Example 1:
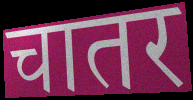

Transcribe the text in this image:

चातर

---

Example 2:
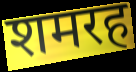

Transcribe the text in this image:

शमरह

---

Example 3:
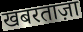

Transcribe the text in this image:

खबरताज़ा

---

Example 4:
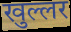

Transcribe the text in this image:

खुल्लर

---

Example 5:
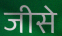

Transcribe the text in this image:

जीसे